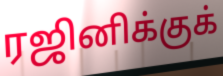
ரஜினிக்குக்